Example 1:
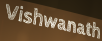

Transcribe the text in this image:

Vishwanath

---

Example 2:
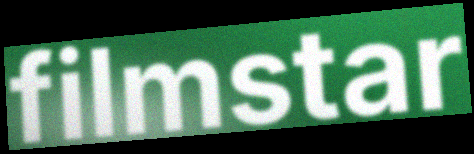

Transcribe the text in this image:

filmstar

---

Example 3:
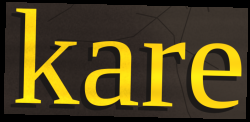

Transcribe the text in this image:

kare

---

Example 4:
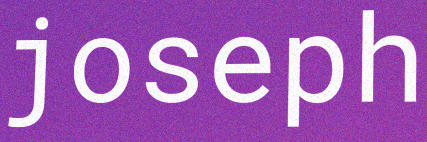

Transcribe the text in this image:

joseph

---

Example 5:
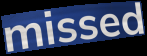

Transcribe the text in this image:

missed